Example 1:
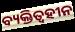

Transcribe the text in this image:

ବ୍ୟକ୍ତିତ୍ୱହୀନ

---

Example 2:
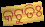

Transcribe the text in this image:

କଟୁତିଃ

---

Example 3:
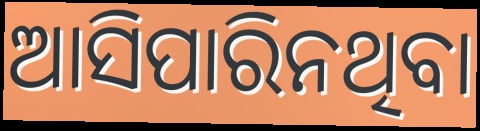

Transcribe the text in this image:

ଆସିପାରିନଥିବା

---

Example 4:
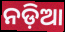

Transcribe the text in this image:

ନଡ଼ିଆ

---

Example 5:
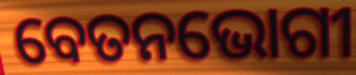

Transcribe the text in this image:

ବେତନଭୋଗୀ